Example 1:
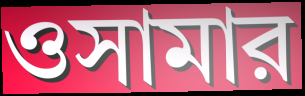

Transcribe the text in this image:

ওসামার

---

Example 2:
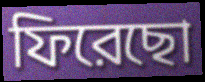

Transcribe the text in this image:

ফিরেছো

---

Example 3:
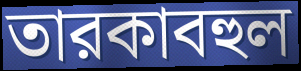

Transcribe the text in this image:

তারকাবহুল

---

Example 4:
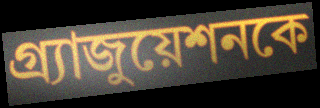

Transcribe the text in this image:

গ্র্যাজুয়েশনকে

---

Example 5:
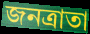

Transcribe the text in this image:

জনত্রাতা